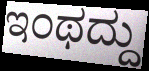
ಇಂಥದ್ದು